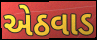
એઠવાડ